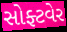
સોફ્ટવેર